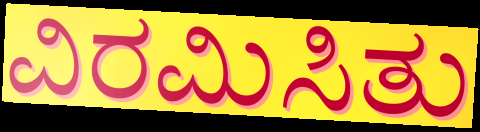
ವಿರಮಿಸಿತು